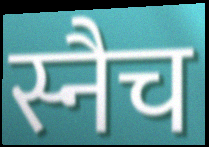
स्नैच